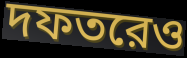
দফতরেও